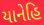
યાનેહિ